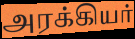
அரக்கியர்